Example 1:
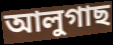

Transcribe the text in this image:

আলুগাছ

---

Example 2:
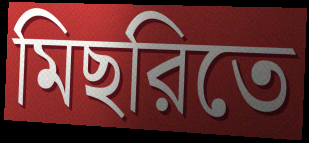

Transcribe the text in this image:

মিছরিতে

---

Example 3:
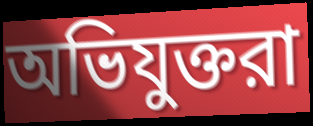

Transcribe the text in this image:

অভিযুক্তরা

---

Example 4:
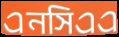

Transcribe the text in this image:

এনসিএএ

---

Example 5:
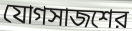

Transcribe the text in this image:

যোগসাজশের